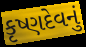
કૃષ્ણદેવનું